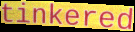
tinkered